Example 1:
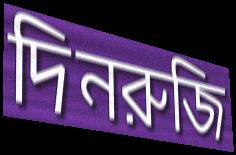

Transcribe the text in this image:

দিনরুজি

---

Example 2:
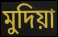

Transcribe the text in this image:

মুদিয়া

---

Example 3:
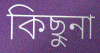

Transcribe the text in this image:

কিছুনা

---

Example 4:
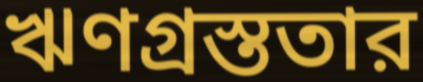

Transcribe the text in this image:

ঋণগ্রস্ততার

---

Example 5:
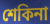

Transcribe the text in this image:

শেকিনা